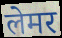
लेमर